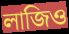
লাজিও